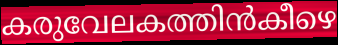
കരുവേലകത്തിൻകീഴെ